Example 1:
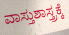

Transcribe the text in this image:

ವಾಸ್ತುಶಾಸ್ತ್ರಕ್ಕೆ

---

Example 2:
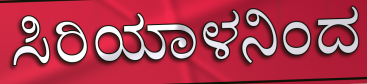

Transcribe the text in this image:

ಸಿರಿಯಾಳನಿಂದ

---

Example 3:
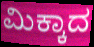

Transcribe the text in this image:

ಮಿಕ್ಕಾದ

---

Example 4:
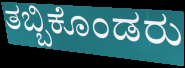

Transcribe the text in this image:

ತಬ್ಬಿಕೊಂಡರು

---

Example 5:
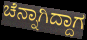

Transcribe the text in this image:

ಚೆನ್ನಾಗಿದ್ದಾಗ